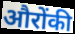
औरोंकी